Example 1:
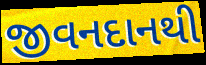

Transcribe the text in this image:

જીવનદાનથી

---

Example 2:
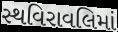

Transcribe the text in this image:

સ્થવિરાવલિમાં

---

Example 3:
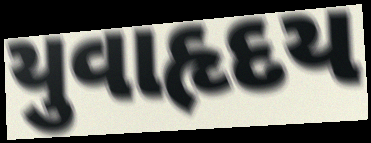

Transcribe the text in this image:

યુવાહૃદય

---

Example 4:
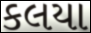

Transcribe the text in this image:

કલયા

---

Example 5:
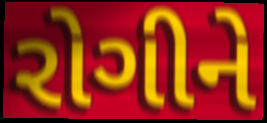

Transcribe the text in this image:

રોગીને